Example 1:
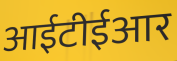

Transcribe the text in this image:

आईटीईआर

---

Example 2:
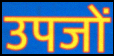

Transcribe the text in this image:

उपजों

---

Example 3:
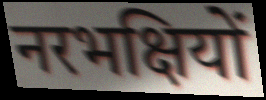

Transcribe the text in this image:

नरभक्षियों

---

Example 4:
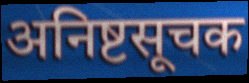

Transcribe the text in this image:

अनिष्टसूचक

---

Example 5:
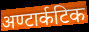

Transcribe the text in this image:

अण्टार्कटिक